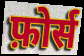
फ़ोर्स